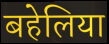
बहेलिया